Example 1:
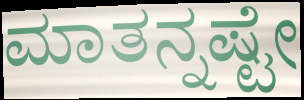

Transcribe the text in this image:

ಮಾತನ್ನಷ್ಟೇ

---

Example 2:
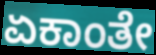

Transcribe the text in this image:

ಏಕಾಂತೇ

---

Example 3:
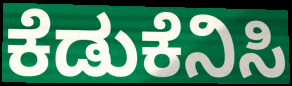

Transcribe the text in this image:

ಕೆಡುಕೆನಿಸಿ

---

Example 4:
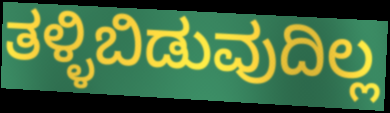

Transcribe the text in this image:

ತಳ್ಳಿಬಿಡುವುದಿಲ್ಲ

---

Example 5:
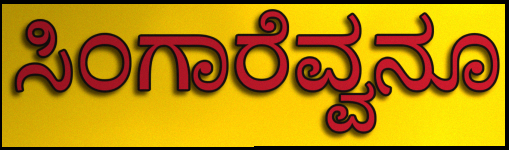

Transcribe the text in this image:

ಸಿಂಗಾರೆವ್ವನೂ